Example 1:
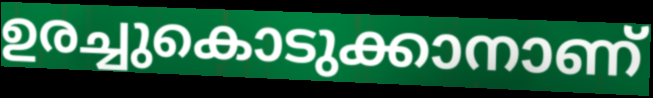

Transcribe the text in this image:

ഉരച്ചുകൊടുക്കാനാണ്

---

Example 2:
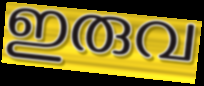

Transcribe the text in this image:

ഇരുവ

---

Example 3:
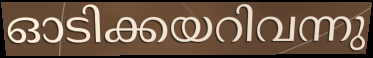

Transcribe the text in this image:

ഓടിക്കയറിവന്നു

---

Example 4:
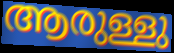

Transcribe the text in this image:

ആരുള്ളു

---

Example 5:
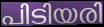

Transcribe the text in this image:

പിടിയരി